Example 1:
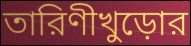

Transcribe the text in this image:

তারিণীখুড়োর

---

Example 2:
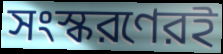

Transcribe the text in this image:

সংস্করণেরই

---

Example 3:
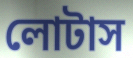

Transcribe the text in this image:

লোটাস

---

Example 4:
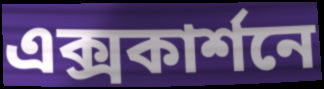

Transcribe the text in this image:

এক্সকার্শনে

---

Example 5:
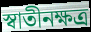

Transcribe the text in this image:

স্বাতীনক্ষত্র